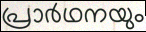
പ്രാർഥനയും